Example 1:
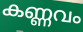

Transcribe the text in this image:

കണ്ണവം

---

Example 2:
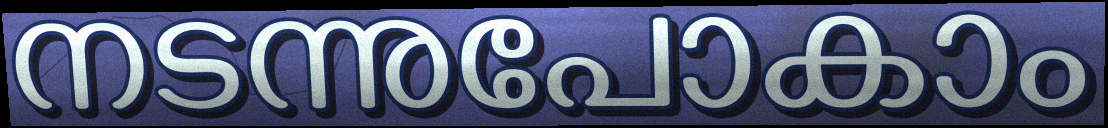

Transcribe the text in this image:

നടന്നുപോകാം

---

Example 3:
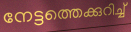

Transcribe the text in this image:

നേട്ടത്തെക്കുറിച്ച്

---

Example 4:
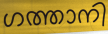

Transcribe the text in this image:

ഗത്താനി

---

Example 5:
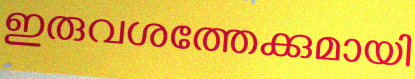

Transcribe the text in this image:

ഇരുവശത്തേക്കുമായി